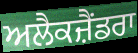
ਅਲੈਕਜ਼ੈਂਡਰਾ